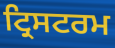
ਟ੍ਰਿਸਟਰਮ